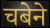
चबेने